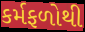
કર્મફળોથી